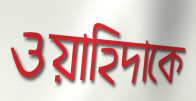
ওয়াহিদাকে